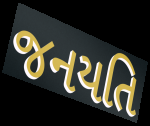
જનયતિ